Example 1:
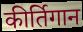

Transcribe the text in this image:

कीर्तिगान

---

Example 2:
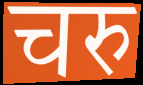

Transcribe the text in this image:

चरु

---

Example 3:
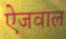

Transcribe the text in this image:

ऐजवाल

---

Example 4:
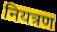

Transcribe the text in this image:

नियत्रण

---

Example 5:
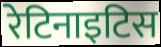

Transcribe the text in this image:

रेटिनाइटिस